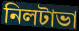
নিলটাভা